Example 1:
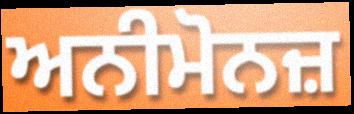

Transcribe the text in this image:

ਅਨੀਮੋਨਜ਼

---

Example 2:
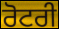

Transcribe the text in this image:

ਰੋਟਰੀ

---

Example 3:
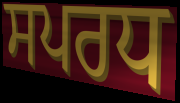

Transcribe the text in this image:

ਸਪਰਧ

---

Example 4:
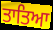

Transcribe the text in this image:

ਤਾਤਿਆ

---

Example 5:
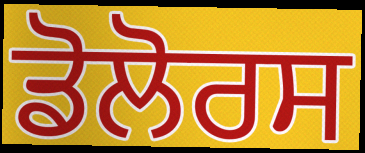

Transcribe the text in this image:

ਡੋਲੋਰਸ